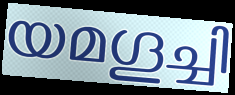
യമഗൂച്ചി